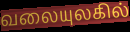
வலையுலகில்